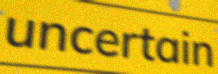
uncertain